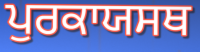
ਪੁਰਕਾਯਸਥ